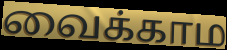
வைக்காம